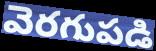
వెరగుపడి